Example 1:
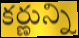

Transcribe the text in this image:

కర్ణున్ని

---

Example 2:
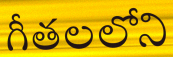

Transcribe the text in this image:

గీతలలోని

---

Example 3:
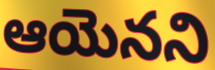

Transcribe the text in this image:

ఆయెనని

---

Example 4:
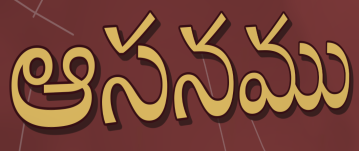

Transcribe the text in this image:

ఆసనము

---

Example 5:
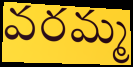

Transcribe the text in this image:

వరమ్మ